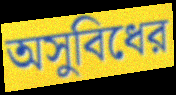
অসুবিধের